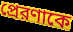
প্রেরণাকে